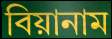
বিয়ানাম